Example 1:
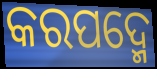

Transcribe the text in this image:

କରପଦ୍ମେ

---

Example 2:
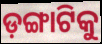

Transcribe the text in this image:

ଡ଼ଙ୍ଗାଟିକୁ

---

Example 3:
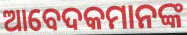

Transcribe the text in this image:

ଆବେଦକମାନଙ୍କ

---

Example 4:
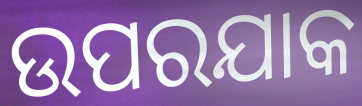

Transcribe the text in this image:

ଉପରଯାକ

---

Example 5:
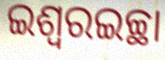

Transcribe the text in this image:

ଇଶ୍ୱରଇଚ୍ଛା